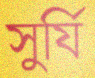
সুর্যি